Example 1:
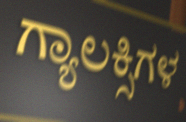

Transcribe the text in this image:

ಗ್ಯಾಲಕ್ಸಿಗಳ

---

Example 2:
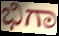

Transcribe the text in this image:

ಭಿಗಾ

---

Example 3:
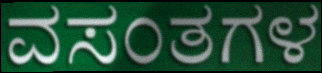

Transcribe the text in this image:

ವಸಂತಗಳ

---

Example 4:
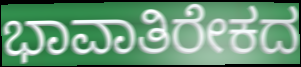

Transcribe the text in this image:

ಭಾವಾತಿರೇಕದ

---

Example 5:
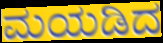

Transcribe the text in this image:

ಮಯಡಿದ